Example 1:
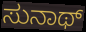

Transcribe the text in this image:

ಸುನಾಥ್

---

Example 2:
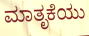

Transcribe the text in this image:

ಮಾತೃಕೆಯು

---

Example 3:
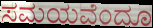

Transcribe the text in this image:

ಸಮಯವೆಂದೂ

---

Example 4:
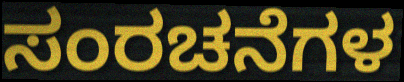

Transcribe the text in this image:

ಸಂರಚನೆಗಳ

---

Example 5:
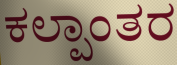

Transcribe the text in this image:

ಕಲ್ಪಾಂತರ